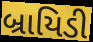
બ્રાયિડી